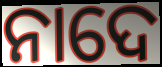
ନାଦେ